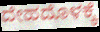
ದೇಹದೊಳಕ್ಕೆ